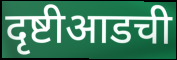
दृष्टीआडची